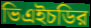
ভিএইচডির